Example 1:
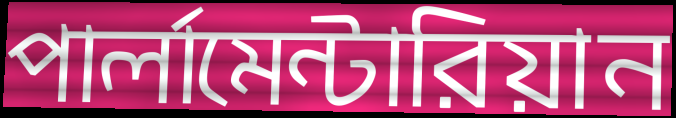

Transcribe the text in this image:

পার্লামেন্টারিয়ান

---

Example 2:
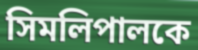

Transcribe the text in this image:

সিমলিপালকে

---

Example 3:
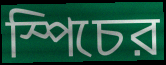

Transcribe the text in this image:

স্পিচের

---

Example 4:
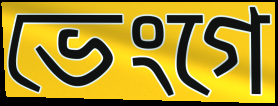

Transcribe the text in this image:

ভেংগে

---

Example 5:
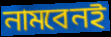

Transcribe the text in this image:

নামবেনই